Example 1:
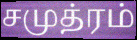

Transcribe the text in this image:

சமுத்ரம்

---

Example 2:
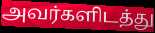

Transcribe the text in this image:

அவர்களிடத்து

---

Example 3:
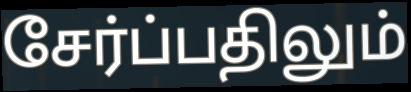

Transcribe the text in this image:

சேர்ப்பதிலும்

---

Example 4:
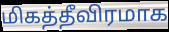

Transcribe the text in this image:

மிகத்தீவிரமாக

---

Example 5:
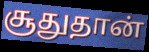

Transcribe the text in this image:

சூதுதான்